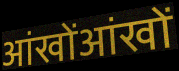
आंखोंआंखों